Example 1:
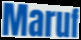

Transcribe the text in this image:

Maruf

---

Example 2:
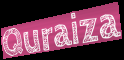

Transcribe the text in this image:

Quraiza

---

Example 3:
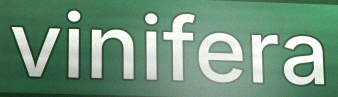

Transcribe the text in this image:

vinifera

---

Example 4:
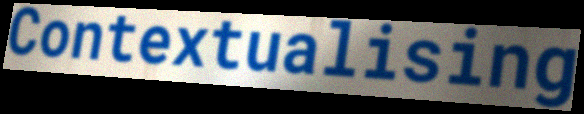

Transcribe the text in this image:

Contextualising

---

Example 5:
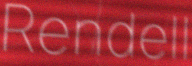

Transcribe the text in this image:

Rendell